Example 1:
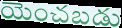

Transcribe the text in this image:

యెంచబడు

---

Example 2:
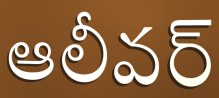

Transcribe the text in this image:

ఆలీవర్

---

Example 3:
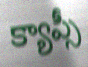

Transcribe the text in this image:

క్యాప్సీ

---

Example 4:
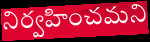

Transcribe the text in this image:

నిర్వహించమని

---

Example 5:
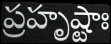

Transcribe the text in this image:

ప్రహృష్టాః